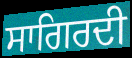
ਸਾਗਿਰਦੀ